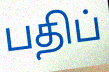
பதிப்